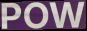
POW